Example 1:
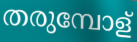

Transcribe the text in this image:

തരുമ്പോള്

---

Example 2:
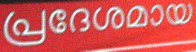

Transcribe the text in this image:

പ്രദേശമായ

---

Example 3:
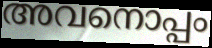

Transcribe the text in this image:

അവനൊപ്പം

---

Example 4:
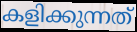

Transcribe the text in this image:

കളിക്കുന്നത്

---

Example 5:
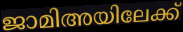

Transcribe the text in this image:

ജാമിഅയിലേക്ക്